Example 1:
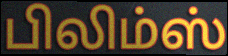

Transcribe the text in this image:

பிலிம்ஸ்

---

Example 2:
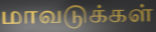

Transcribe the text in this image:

மாவடுக்கள்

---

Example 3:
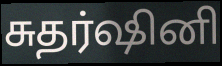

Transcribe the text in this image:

சுதர்ஷினி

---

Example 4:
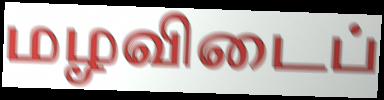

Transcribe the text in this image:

மழவிடைப்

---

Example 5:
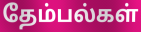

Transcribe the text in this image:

தேம்பல்கள்